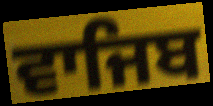
ਵਾਜਿਬ